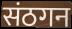
संठगन